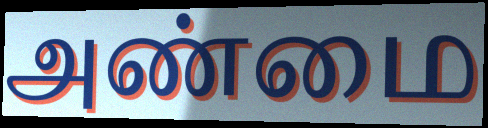
அண்மை